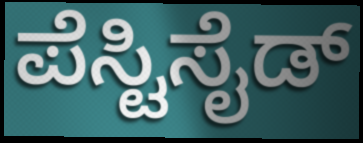
ಪೆಸ್ಟಿಸೈಡ್